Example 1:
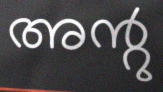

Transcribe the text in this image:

അന്റു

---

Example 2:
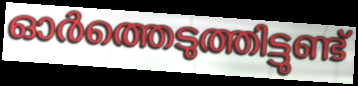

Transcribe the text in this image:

ഓർത്തെടുത്തിട്ടുണ്ട്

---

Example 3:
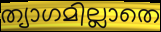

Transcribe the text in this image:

ത്യാഗമില്ലാതെ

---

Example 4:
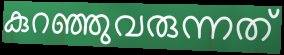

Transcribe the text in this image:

കുറഞ്ഞുവരുന്നത്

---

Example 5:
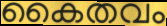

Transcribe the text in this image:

കൈതവം